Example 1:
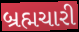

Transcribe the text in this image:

બ્રહ્મચારી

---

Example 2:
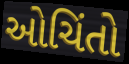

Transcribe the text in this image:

ઓચિંતો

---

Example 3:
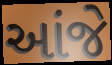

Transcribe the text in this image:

આંજે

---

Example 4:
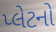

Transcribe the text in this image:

પ્લેટનો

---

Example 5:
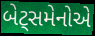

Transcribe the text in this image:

બેટ્સમેનોએ